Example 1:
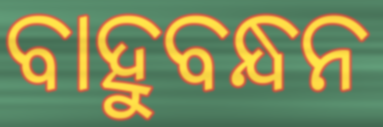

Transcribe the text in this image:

ବାହୁବନ୍ଧନ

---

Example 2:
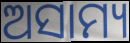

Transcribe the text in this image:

ଅସାମ୍ୟ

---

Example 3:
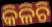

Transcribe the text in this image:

କିଳିଚି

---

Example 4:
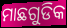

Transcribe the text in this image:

ମାଛଗୁଡିକ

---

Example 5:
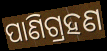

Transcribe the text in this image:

ପାଣିଗ୍ରହଣ